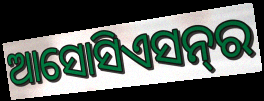
ଆସୋସିଏସନ୍‍ର